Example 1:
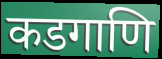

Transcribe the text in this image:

कडगाणि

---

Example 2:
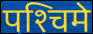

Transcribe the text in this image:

पश्चिमे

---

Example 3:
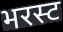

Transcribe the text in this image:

भरस्ट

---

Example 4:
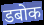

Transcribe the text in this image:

डबोक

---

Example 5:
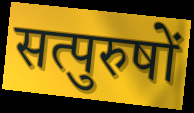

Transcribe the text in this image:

सत्पुरुषों